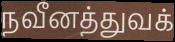
நவீனத்துவக்